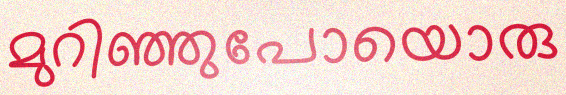
മുറിഞ്ഞുപോയൊരു